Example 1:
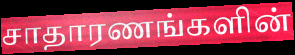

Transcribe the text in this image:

சாதாரணங்களின்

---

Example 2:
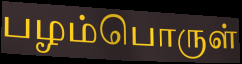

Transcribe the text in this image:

பழம்பொருள்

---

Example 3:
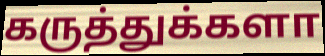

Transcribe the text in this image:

கருத்துக்களா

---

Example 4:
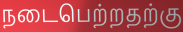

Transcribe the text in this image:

நடைபெற்றதற்கு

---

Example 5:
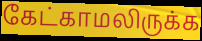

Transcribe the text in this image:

கேட்காமலிருக்க